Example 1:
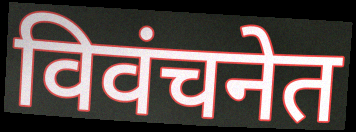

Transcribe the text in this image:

विवंचनेत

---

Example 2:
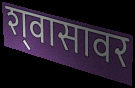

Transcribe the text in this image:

श्वासावर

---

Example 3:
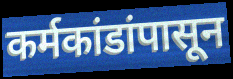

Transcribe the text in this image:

कर्मकांडांपासून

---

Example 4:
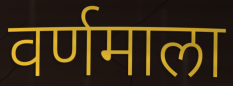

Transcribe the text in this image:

वर्णमाला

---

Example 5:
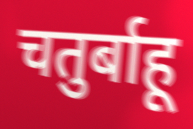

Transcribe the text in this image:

चतुर्बाहू